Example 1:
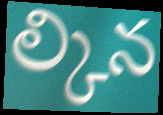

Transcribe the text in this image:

ల్కిన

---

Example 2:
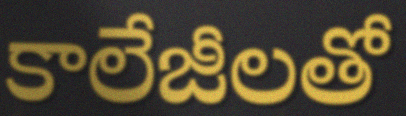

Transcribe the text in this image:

కాలేజీలతో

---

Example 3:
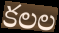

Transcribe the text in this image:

కలల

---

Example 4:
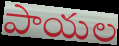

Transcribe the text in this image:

పాయల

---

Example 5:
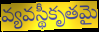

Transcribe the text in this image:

వ్యవస్థీకృతమై